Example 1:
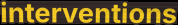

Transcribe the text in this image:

interventions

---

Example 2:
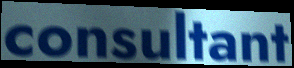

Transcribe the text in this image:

consultant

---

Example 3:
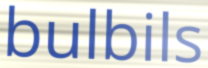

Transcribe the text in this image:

bulbils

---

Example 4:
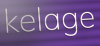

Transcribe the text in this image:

kelage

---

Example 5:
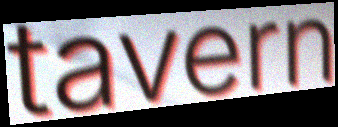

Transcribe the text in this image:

tavern